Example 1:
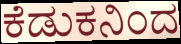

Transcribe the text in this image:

ಕೆಡುಕನಿಂದ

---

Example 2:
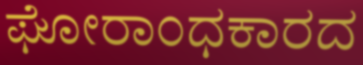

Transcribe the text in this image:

ಘೋರಾಂಧಕಾರದ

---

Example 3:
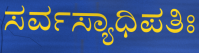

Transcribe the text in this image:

ಸರ್ವಸ್ಯಾಧಿಪತಿಃ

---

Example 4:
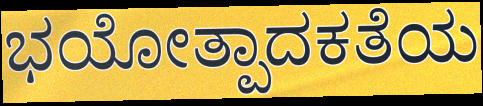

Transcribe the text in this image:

ಭಯೋತ್ಪಾದಕತೆಯ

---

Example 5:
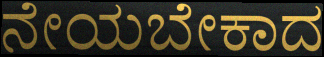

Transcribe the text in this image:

ನೇಯಬೇಕಾದ